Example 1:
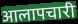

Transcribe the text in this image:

आलापचारी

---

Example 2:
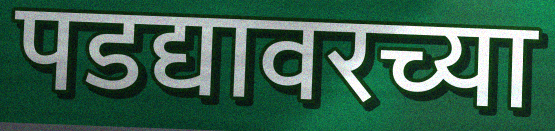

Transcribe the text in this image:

पडद्यावरच्या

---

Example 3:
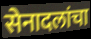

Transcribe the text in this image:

सेनादलांचा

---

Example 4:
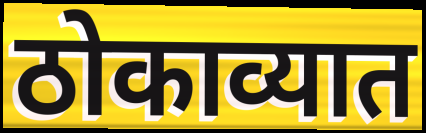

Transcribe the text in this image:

ठोकाव्यात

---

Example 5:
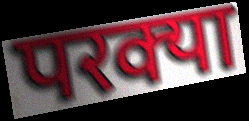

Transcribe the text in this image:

परक्या